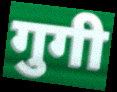
गुगी